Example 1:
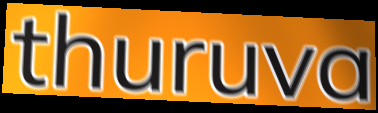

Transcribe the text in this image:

thuruva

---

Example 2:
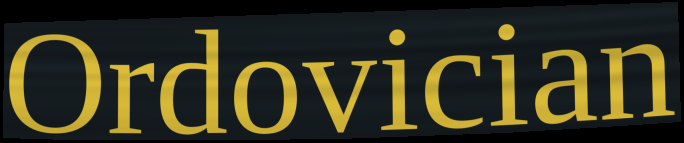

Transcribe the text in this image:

Ordovician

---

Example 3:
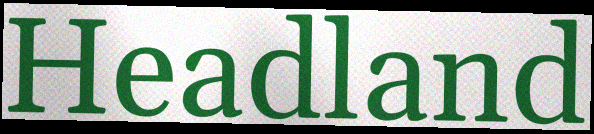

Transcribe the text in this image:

Headland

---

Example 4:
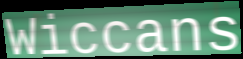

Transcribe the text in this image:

Wiccans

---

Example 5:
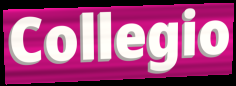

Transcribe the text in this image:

Collegio